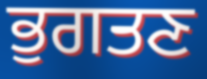
ਭੁਗਤਣ